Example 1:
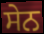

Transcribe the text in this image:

ਸੇਨ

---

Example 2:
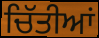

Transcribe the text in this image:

ਚਿੱਤੀਆਂ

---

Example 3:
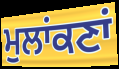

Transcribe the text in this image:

ਮੁਲਾਂਕਣਾਂ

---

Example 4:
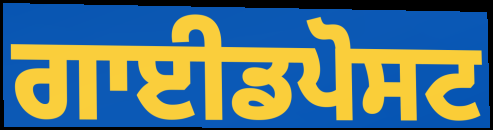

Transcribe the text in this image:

ਗਾਈਡਪੋਸਟ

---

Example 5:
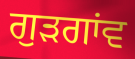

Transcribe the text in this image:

ਗੁਡ਼ਗਾਂਵ